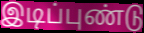
இடிப்புண்டு